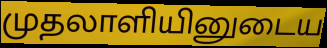
முதலாளியினுடைய